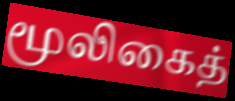
மூலிகைத்